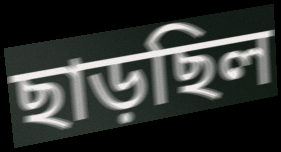
ছাড়ছিল